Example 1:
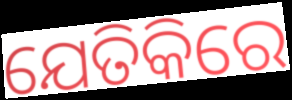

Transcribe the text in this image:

ଯେତିକିରେ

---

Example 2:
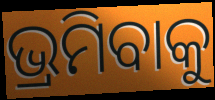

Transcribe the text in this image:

ଭ୍ରମିବାକୁ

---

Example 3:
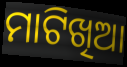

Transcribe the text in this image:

ମାଟିଖିଆ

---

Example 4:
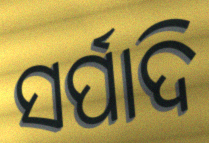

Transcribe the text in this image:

ସର୍ପାଦି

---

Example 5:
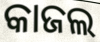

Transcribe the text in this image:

କାଜଲ